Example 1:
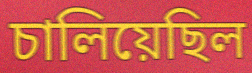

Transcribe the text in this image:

চালিয়েছিল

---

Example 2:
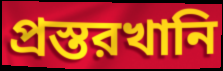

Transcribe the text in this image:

প্রস্তরখানি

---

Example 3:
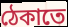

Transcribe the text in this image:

ঠেকাতে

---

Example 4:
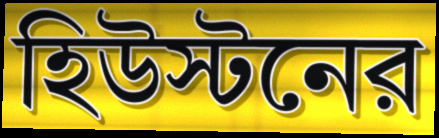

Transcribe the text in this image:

হিউস্টনের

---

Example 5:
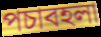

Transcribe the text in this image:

পচাবহলা